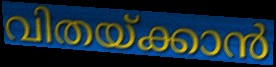
വിതയ്ക്കാൻ